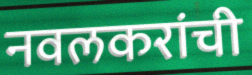
नवलकरांची